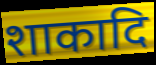
शाकादि